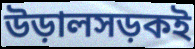
উড়ালসড়কই